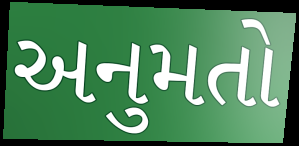
અનુમતો